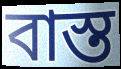
বাস্ত